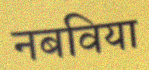
नबविया